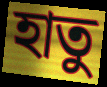
হাতু